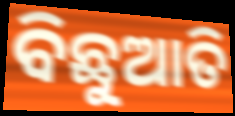
ବିଛୁଆତି